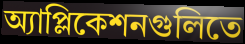
অ্যাপ্লিকেশনগুলিতে